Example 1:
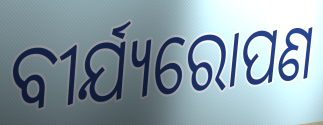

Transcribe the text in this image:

ବୀର୍ଯ୍ୟରୋପଣ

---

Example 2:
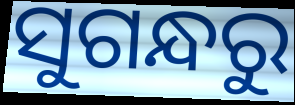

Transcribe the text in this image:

ସୁଗନ୍ଧରୁ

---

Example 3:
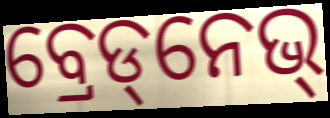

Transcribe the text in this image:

ବ୍ରେଡ୍‌ନେଭ୍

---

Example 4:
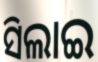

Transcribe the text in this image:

ସିଲାଇ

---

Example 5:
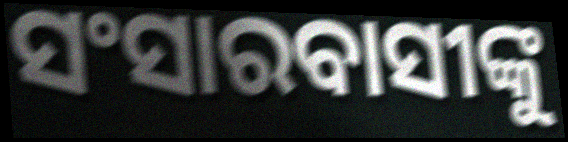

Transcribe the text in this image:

ସଂସାରବାସୀଙ୍କୁ